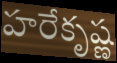
హరేకృష్ణ